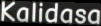
Kalidasa